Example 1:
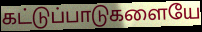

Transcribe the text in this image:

கட்டுப்பாடுகளையே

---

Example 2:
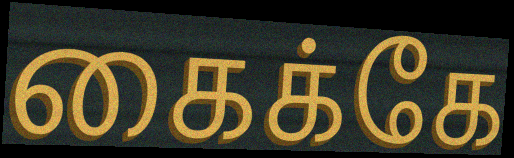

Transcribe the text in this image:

கைக்கே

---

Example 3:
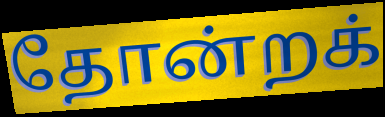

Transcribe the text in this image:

தோன்றக்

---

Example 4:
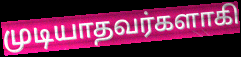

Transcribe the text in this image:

முடியாதவர்களாகி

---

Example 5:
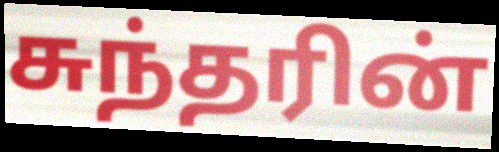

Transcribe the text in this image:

சுந்தரின்